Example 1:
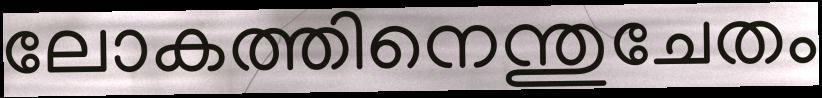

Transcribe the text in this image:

ലോകത്തിനെന്തുചേതം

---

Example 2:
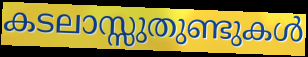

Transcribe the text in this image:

കടലാസ്സുതുണ്ടുകൾ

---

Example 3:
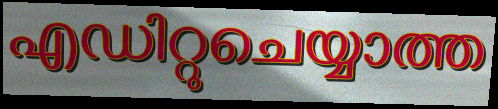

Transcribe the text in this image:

എഡിറ്റുചെയ്യാത്ത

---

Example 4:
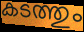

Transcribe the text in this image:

കടത്തും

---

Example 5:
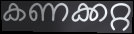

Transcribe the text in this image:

കണക്കറ്റ